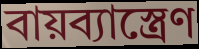
বায়ব্যাস্ত্রেণ